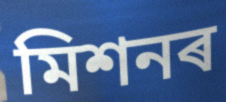
মিশনৰ